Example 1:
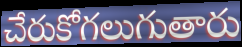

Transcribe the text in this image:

చేరుకోగలుగుతారు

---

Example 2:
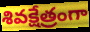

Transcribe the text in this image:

శివక్షేత్రంగా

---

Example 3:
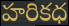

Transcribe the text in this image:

హరికధ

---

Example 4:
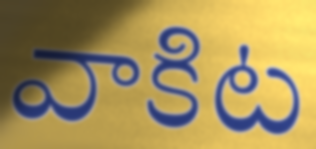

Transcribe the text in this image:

వాకిట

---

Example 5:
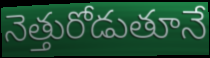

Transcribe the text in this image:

నెత్తురోడుతూనే